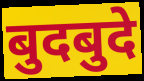
बुदबुदे